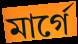
মার্গে